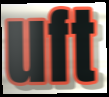
uft